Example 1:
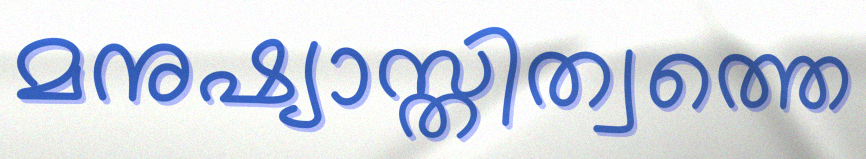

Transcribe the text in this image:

മനുഷ്യാസ്തിത്വത്തെ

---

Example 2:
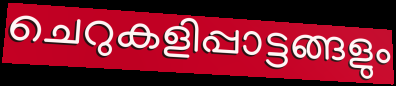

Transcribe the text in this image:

ചെറുകളിപ്പാട്ടങ്ങളും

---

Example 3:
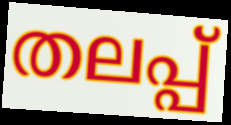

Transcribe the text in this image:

തലപ്പ്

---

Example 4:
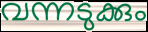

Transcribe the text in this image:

വന്നടുക്കും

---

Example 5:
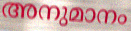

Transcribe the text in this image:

അനുമാനം